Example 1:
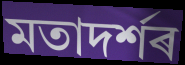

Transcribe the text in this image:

মতাদৰ্শৰ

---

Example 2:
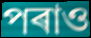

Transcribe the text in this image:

পৰাও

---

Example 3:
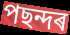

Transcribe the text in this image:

পছন্দৰ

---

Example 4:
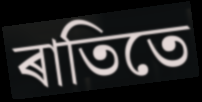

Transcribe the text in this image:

ৰাতিতে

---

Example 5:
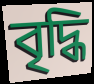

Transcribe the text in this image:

বৃদ্ধি